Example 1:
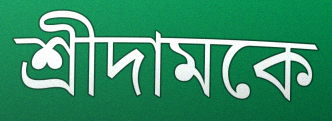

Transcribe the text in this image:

শ্রীদামকে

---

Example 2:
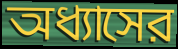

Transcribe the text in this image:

অধ্যাসের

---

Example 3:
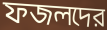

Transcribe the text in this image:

ফজলদের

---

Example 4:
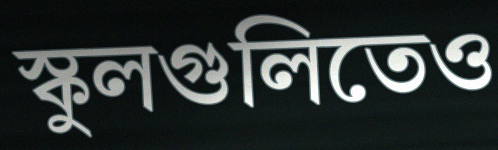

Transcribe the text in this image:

স্কুলগুলিতেও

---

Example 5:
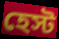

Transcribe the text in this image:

হেস্ট